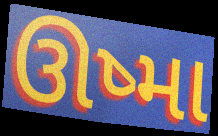
ઊષ્મા